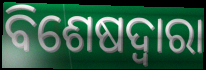
ବିଶେଷଦ୍ଵାରା